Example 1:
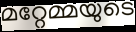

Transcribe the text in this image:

മറ്റേമ്മയുടെ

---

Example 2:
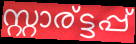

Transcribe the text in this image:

സ്റ്റാര്ട്ടപ്പ്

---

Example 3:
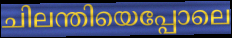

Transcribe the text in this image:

ചിലന്തിയെപ്പോലെ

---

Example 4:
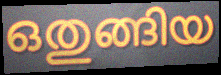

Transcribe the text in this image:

ഒതുങ്ങിയ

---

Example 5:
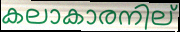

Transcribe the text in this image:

കലാകാരനില്